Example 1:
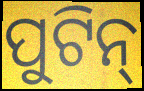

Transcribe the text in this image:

ପୁଟିନ୍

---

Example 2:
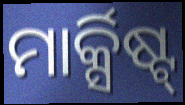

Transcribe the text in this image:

ମାର୍କ୍ସିଷ୍ଟ୍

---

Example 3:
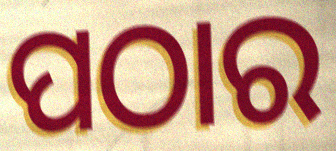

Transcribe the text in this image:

ପଠାର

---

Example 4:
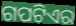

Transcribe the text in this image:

ଗପଟିଏର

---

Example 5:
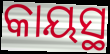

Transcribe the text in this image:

କାୟସ୍ଥ